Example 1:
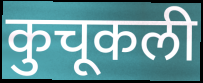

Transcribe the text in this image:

कुचूकली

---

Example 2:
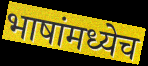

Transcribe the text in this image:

भाषांमध्येच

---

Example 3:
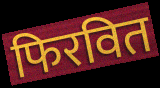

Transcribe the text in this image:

फिरवित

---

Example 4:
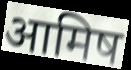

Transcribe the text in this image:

आमिष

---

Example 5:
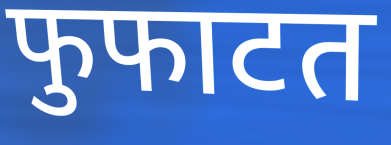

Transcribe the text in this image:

फुफाटत